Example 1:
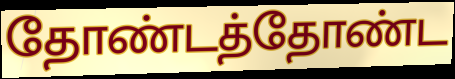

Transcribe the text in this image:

தோண்டத்தோண்ட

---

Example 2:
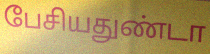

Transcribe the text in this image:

பேசியதுண்டா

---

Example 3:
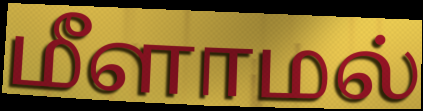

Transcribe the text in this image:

மீளாமல்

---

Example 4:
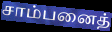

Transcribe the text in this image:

சாம்பனைத்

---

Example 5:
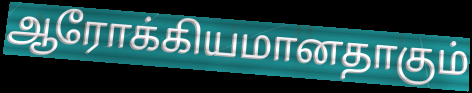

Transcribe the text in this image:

ஆரோக்கியமானதாகும்